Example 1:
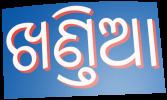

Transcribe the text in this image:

ଖଣ୍ତିଆ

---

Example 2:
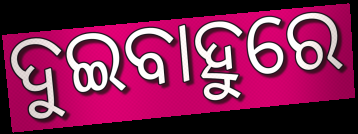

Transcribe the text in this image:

ଦୁଇବାହୁରେ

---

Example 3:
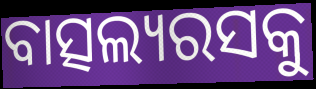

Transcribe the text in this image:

ବାତ୍ସଲ୍ୟରସକୁ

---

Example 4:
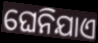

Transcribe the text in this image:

ଘେନିଯାଏ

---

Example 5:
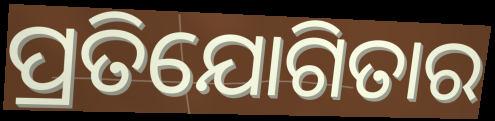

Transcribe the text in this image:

ପ୍ରତିଯୋଗିତାର